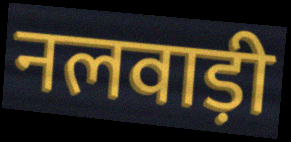
नलवाड़ी